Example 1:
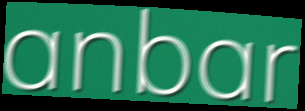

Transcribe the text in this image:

anbar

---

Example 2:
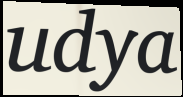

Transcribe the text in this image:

udya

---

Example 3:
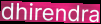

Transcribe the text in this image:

dhirendra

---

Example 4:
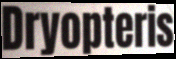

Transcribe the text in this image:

Dryopteris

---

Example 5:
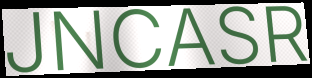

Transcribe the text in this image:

JNCASR